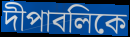
দীপাবলিকে